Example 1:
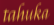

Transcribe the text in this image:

tahuka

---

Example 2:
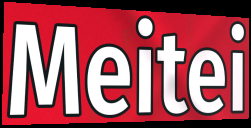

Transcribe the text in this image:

Meitei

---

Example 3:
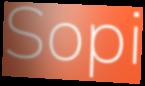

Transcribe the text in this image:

Sopi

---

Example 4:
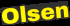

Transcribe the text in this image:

Olsen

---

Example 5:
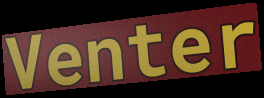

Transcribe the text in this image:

Venter